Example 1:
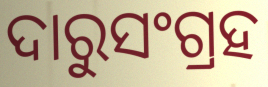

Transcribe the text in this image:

ଦାରୁସଂଗ୍ରହ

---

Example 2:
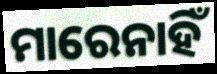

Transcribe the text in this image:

ମାରେନାହିଁ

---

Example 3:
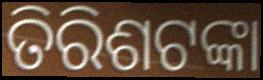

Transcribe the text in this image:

ତିରିଶଟଙ୍କା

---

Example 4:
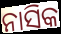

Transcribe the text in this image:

ନାସିକ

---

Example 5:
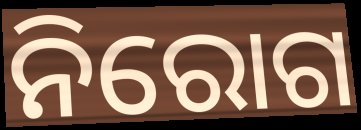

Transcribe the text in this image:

ନିରୋଗ